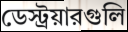
ডেস্ট্রয়ারগুলি